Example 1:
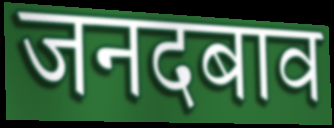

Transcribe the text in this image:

जनदबाव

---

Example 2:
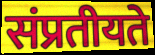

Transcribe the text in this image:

संप्रतीयते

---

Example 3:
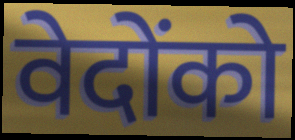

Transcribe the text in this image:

वेदोंको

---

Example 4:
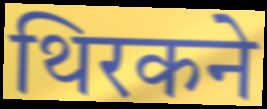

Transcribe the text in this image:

थिरकने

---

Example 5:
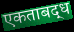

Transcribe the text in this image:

एकताबद्ध